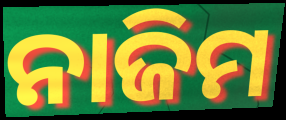
ନାଜିମ